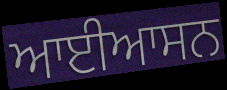
ਆਈਆਸਨ